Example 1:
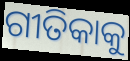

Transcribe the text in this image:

ଗୀତିକାକୁ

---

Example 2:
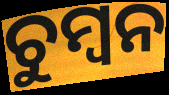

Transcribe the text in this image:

ଚୁମ୍ବନ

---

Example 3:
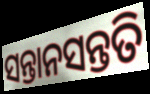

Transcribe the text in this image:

ସନ୍ତାନସନ୍ତତି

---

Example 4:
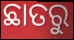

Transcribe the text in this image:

ଛାତରୁ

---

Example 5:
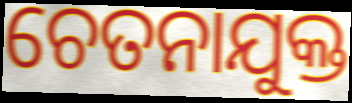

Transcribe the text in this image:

ଚେତନାଯୁକ୍ତ